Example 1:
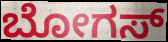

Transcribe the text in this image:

ಬೋಗಸ್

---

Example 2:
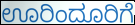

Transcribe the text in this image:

ಊರಿಂದೂರಿಗೆ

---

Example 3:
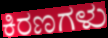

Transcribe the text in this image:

ಕಿರಣಗಳು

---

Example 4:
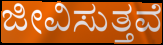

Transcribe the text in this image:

ಜೀವಿಸುತ್ತವೆ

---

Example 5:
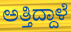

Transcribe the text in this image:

ಅತ್ತಿದ್ದಾಳೆ